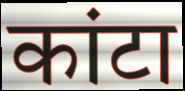
कांटा